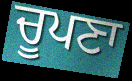
ਚੂਪਣਾ